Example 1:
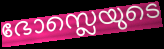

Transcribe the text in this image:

ഭോസ്ലെയുടെ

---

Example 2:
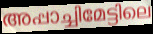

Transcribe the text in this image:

അപ്പാച്ചിമേട്ടിലെ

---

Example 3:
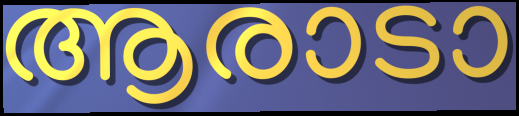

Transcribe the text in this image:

ആരാടാ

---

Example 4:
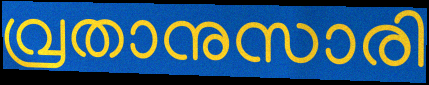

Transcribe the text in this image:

വ്രതാനുസാരി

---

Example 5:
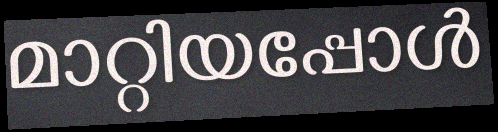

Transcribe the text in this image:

മാറ്റിയപ്പോൾ